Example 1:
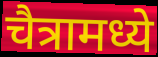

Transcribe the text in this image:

चैत्रामध्ये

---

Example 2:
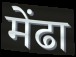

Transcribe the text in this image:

मेंढा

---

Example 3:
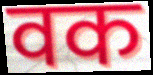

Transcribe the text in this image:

वक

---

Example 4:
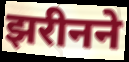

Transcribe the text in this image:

झरीनने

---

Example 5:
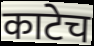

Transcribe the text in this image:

काटेच